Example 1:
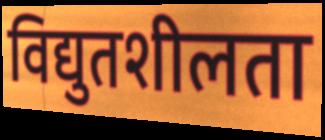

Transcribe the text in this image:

विद्युतशीलता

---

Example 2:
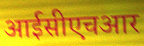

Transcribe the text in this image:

आईसीएचआर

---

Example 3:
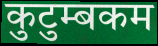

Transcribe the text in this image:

कुटुम्बकम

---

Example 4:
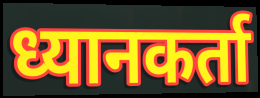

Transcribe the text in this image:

ध्यानकर्ता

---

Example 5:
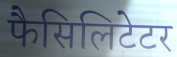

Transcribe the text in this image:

फैसिलिटेटर